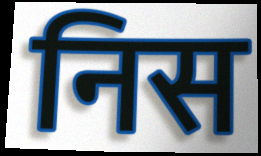
निस